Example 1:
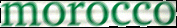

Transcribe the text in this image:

morocco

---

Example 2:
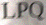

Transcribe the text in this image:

LPQ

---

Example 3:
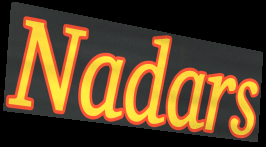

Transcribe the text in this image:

Nadars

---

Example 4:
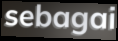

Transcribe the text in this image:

sebagai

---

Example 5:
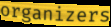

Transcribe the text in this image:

organizers